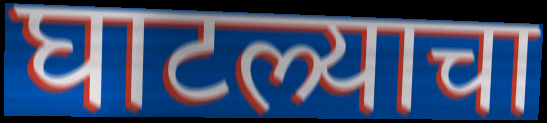
घाटल्याचा